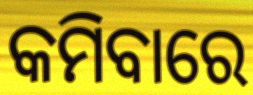
କମିବାରେ